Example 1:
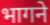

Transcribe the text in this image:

भागने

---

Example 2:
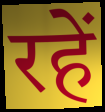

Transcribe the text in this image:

रहें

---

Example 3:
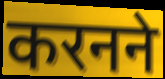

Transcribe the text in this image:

करनने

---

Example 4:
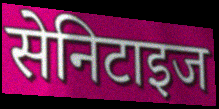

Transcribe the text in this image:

सेनिटाइज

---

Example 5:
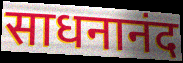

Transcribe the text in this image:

साधनानंद